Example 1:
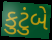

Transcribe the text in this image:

કુટુંબે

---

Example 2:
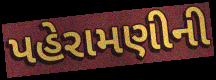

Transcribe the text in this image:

પહેરામણીની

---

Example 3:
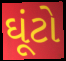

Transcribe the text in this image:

ઘૂંટો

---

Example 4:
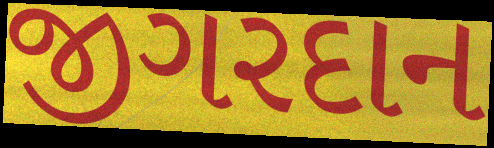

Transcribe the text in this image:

જીગરદાન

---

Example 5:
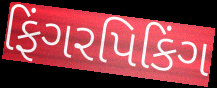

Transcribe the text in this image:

ફિંગરપિકિંગ